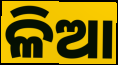
ଳିଆ